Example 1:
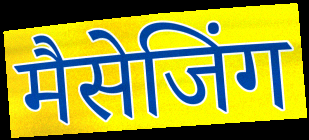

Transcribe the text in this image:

मैसेजिंग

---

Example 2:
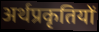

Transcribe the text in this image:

अर्थप्रकृतियों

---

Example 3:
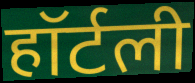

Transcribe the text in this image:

हॉर्टली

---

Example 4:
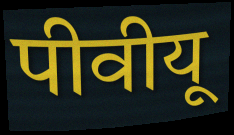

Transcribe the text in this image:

पीवीयू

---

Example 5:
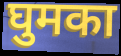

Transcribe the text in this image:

घुमका